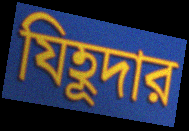
যিহূদার